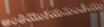
అంతియొకయనుండియు